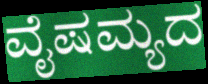
ವೈಷಮ್ಯದ